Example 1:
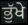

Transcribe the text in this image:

ਭੁੱਖੇ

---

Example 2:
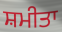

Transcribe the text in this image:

ਸ਼ਮੀਤਾ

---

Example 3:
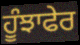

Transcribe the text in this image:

ਹੂੰਝਾਫੇਰ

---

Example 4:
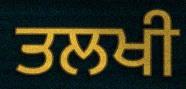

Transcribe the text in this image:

ਤਲਖੀ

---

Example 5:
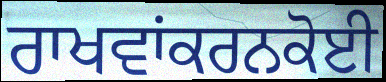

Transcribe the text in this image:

ਰਾਖਵਾਂਕਰਨਕੋਈ